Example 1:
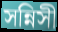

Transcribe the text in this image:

সন্নিসী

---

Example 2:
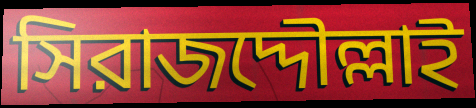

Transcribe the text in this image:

সিরাজদ্দৌল্লাই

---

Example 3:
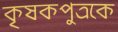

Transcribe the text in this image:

কৃষকপুত্রকে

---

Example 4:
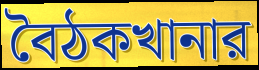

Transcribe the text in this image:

বৈঠকখানার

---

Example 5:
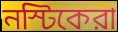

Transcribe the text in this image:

নস্টিকেরা